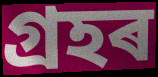
গ্ৰহৰ